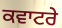
ਕਵਾਟਰੇ